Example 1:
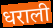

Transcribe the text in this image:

धराली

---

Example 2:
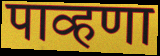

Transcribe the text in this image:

पाव्हणा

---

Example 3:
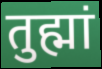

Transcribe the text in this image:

तुह्मां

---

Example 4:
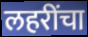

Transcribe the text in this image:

लहरींचा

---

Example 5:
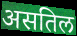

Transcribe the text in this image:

असतिल